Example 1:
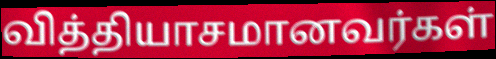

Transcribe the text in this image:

வித்தியாசமானவர்கள்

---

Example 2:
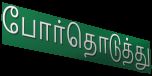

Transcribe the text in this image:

போர்தொடுத்து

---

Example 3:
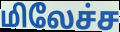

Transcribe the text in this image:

மிலேச்ச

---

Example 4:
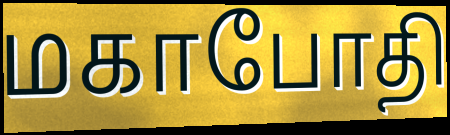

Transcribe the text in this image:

மகாபோதி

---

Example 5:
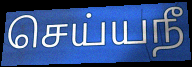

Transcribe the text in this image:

செய்யநீ